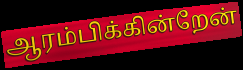
ஆரம்பிக்கின்றேன்